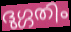
ദുഗ്ഗതിം